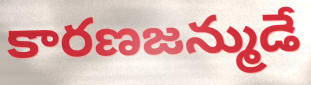
కారణజన్ముడే